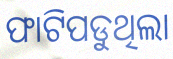
ଫାଟିପଡୁଥିଲା